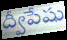
ద్వీపేషు